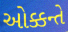
ઓક્કન્તે